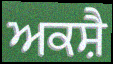
ਅਕਸ਼ੈ